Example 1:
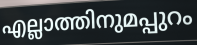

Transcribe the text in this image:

എല്ലാത്തിനുമപ്പുറം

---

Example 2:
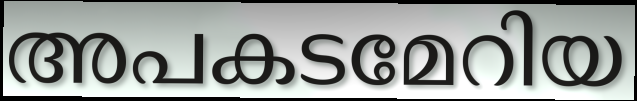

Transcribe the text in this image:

അപകടമേറിയ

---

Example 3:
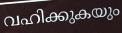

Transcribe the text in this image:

വഹിക്കുകയും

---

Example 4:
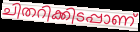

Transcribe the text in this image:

ചിതറിക്കിടപ്പാണ്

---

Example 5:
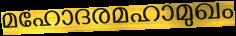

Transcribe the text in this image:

മഹോദരമഹാമുഖം